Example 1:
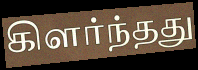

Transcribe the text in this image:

கிளர்ந்தது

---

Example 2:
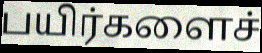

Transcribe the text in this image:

பயிர்களைச்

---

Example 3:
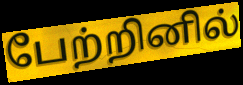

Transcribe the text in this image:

பேற்றினில்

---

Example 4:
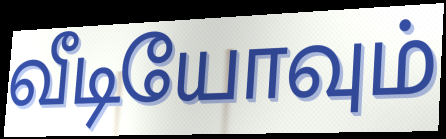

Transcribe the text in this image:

வீடியோவும்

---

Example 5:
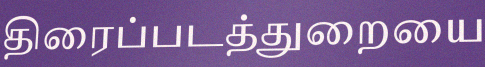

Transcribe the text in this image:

திரைப்படத்துறையை